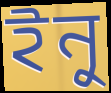
ইনু